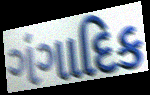
ગંગાદિક